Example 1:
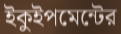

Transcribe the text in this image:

ইকুইপমেন্টের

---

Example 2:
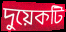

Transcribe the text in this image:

দুয়েকটি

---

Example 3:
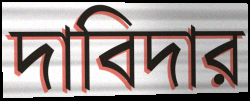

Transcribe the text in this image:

দাবিদার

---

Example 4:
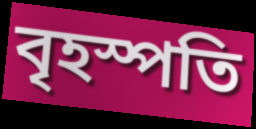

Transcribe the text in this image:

বৃহস্পতি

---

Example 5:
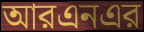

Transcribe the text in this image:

আরএনএর